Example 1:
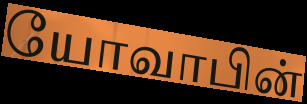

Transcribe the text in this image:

யோவாபின்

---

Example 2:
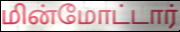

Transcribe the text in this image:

மின்மோட்டார்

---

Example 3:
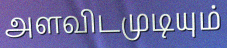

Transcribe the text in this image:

அளவிடமுடியும்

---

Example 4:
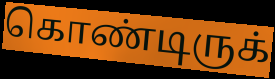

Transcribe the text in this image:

கொண்டிருக்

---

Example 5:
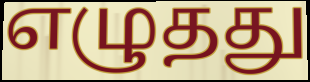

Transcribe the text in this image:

எழுதது